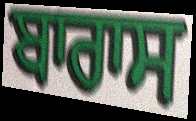
ਬਾਰਾਸ